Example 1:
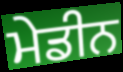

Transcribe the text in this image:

ਮੇਡੀਨ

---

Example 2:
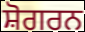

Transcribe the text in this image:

ਸ਼ੋਗਰਨ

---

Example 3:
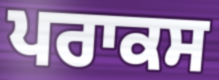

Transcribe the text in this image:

ਪਰਾਕਸ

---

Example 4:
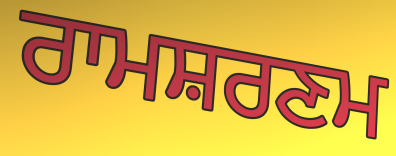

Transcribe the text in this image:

ਰਾਮਸ਼ਰਣਮ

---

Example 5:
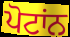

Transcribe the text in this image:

ਪੋਟਾਂਨ